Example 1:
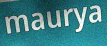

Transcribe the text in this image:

maurya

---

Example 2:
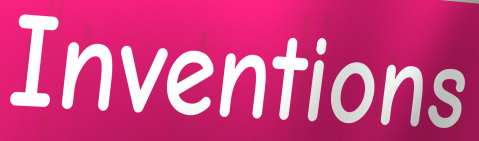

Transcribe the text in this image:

Inventions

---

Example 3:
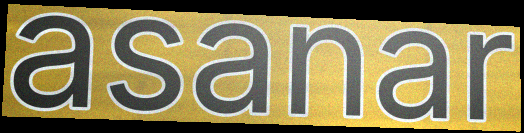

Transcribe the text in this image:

asanar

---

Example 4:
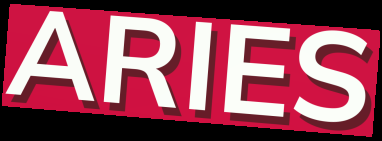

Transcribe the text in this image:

ARIES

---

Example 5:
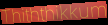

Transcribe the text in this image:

Thiththikkum